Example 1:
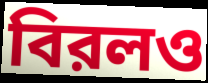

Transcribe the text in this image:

বিরলও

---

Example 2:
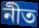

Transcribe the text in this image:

নীত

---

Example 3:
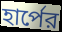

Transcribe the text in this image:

হার্পের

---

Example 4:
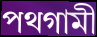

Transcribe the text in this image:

পথগামী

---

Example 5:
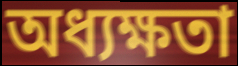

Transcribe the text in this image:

অধ্যক্ষতা